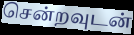
சென்றவுடன்